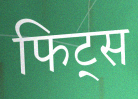
फिट्स